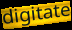
digitate